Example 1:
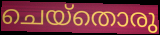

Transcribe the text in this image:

ചെയ്തൊരു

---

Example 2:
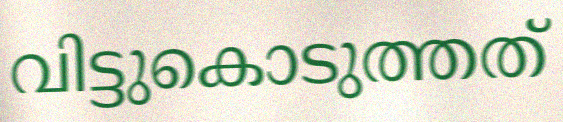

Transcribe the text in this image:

വിട്ടുകൊടുത്തത്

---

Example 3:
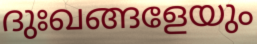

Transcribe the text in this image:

ദുഃഖങ്ങളേയും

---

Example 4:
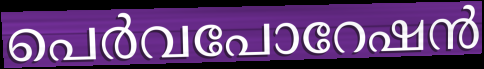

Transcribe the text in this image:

പെർവപോറേഷൻ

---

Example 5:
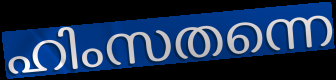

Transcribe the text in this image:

ഹിംസതന്നെ